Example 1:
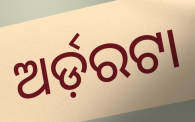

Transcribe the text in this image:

ଅର୍ଡ଼ରଟା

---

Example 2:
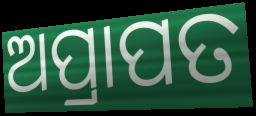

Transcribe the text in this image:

ଅପ୍ରାପତ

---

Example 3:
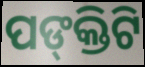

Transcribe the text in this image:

ପଙ୍‌କ୍ତିଟି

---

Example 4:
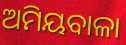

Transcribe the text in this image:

ଅମିୟବାଳା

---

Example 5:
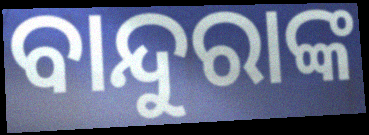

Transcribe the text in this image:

ବାନ୍ଦୁରାଙ୍କ